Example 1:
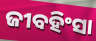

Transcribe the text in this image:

ଜୀବହିଂସା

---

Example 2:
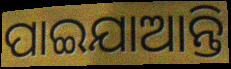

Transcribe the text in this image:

ପାଇଯାଆନ୍ତି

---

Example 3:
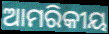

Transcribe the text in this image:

ଆମରିକୀୟ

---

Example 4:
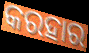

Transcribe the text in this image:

କରହାର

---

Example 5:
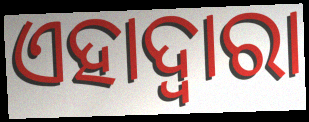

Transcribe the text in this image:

ଏହାଦ୍ୱାରା